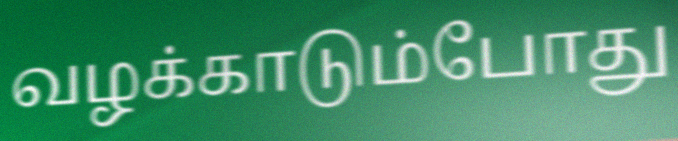
வழக்காடும்போது